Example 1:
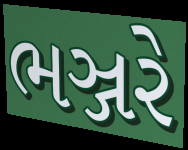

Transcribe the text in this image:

ભઞ્જરે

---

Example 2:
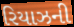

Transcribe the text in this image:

રિયાઝની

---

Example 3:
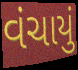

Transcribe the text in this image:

વંચાયું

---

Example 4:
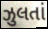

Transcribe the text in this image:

ઝુલતાં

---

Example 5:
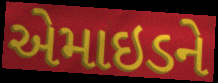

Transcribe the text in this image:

એમાઇડને